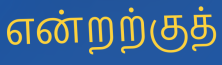
என்றற்குத்